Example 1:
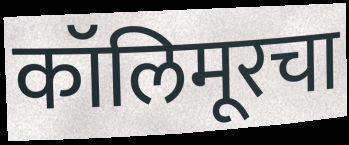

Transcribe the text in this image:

कॉलिमूरचा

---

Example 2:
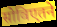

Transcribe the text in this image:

सोविएतने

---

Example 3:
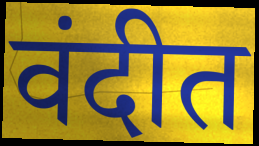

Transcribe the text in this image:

वंदीत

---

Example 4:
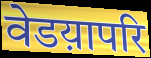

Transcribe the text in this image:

वेडय़ापरि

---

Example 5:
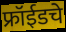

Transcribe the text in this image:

फ्रॉईडचे